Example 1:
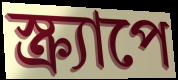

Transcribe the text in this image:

স্ক্র্যাপে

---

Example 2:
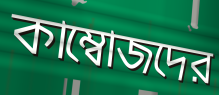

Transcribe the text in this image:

কাম্বোজদের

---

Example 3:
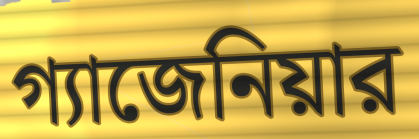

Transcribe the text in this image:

গ্যাজেনিয়ার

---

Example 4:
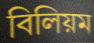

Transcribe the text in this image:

বিলিয়ম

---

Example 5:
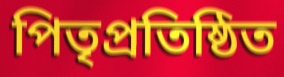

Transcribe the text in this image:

পিতৃপ্রতিষ্ঠিত